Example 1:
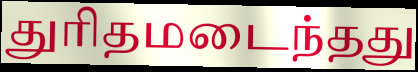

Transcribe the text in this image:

துரிதமடைந்தது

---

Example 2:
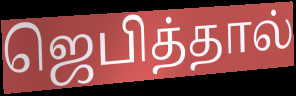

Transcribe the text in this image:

ஜெபித்தால்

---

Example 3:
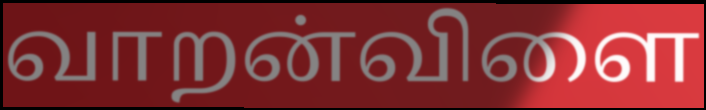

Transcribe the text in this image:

வாறன்விளை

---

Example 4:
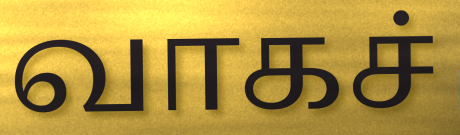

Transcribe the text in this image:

வாகச்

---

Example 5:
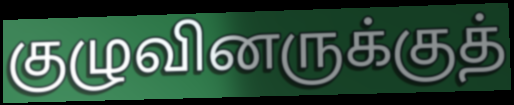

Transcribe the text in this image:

குழுவினருக்குத்